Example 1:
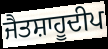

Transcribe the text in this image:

ਜੈਤਸ਼ਾਹੂਦੀਪ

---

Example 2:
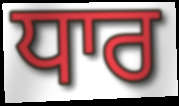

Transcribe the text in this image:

ਧਾਰ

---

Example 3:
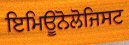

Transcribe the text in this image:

ਇਮਿਊਨੋਲੋਜਿਸਟ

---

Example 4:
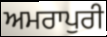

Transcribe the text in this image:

ਅਮਰਾਪੁਰੀ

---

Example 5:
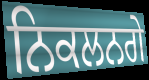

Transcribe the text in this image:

ਨਿਕਲਨਗੇ